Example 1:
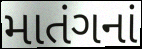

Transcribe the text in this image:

માતંગનાં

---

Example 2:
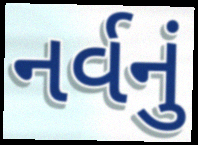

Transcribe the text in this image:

નર્વનું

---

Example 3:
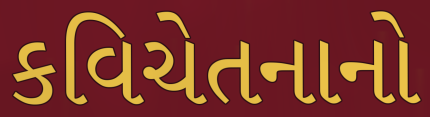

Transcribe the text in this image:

કવિચેતનાનો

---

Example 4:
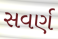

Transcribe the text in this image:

સવર્ણ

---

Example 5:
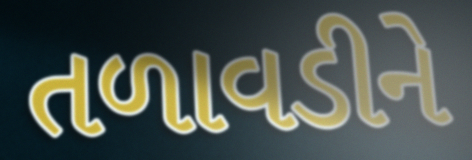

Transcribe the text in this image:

તળાવડીને